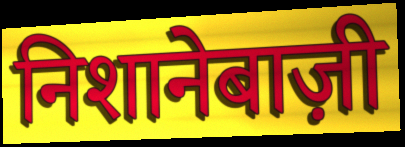
निशानेबाज़ी